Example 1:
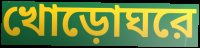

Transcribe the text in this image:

খোড়োঘরে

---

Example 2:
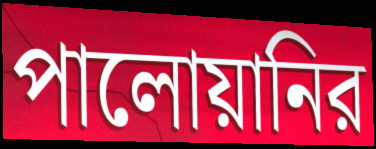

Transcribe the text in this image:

পালোয়ানির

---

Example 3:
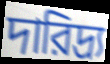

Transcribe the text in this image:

দারিদ্র্য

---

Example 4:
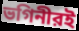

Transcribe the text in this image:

ভগিনীরই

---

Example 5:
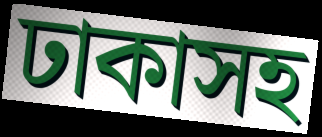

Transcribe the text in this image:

ঢাকাসহ